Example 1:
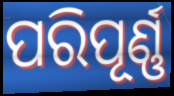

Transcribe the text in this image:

ପରିପୂର୍ଣ୍ଣ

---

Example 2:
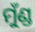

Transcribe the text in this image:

ମୁଁଣ୍ଡ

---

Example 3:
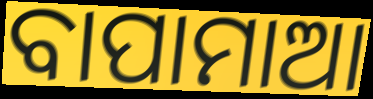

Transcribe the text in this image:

ବାପାମାଆ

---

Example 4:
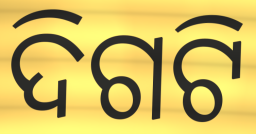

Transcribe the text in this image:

ଦିଗଟି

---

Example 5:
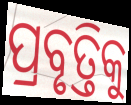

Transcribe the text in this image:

ପ୍ରବୃତ୍ତିକୁ